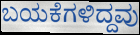
ಬಯಕೆಗಳಿದ್ದವು